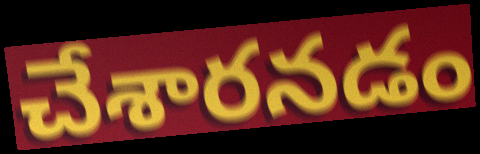
చేశారనడం